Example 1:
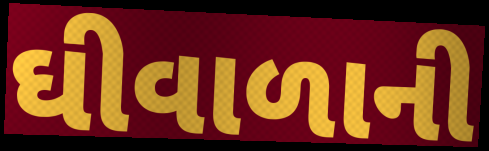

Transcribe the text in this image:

ઘીવાળાની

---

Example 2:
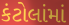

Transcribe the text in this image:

કંટોલાંમાં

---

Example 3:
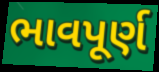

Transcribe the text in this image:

ભાવપૂર્ણ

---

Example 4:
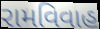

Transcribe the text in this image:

રામવિવાહ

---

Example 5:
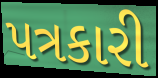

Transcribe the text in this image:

પત્રકારી